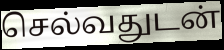
செல்வதுடன்